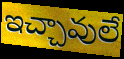
ఇచ్చావులే